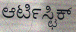
ಆರ್ಟಿಸ್ಟಿಕ್